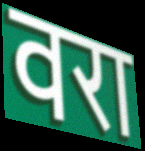
वरा